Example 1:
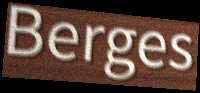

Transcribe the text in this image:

Berges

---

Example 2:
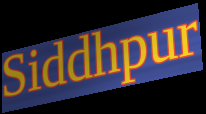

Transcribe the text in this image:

Siddhpur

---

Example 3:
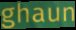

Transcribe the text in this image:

ghaun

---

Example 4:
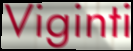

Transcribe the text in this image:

Viginti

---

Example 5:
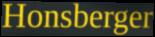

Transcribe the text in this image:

Honsberger